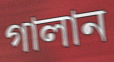
গালান